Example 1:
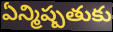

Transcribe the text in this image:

ఏన్మిష్పతుకు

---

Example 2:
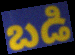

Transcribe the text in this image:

బడి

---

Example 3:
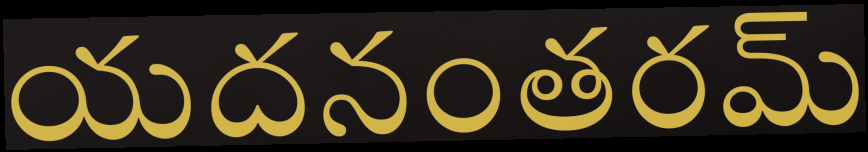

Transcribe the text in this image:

యదనంతరమ్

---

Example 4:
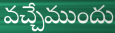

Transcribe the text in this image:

వచ్చేముందు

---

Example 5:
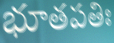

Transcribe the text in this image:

భూతపతిః